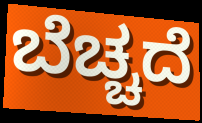
ಬೆಚ್ಚದೆ